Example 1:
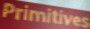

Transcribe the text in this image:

Primitives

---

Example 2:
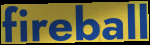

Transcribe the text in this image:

fireball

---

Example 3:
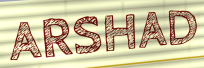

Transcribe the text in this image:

ARSHAD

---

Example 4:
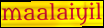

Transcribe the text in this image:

maalaiyil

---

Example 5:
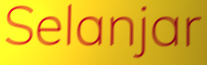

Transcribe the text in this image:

Selanjar